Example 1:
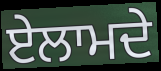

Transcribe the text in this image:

ਏਲਾਮਦੇ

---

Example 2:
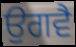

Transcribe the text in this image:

ਉਗਵੈ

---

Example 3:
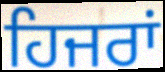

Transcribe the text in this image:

ਹਿਜਰਾਂ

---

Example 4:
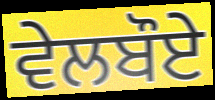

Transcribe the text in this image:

ਵੇਲਬੌਏ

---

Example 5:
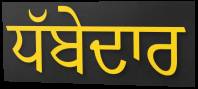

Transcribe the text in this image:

ਧੱਬੇਦਾਰ